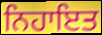
ਨਿਹਾਇਤ